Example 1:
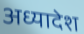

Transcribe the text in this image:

अध्यादेश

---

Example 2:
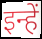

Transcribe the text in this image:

इन्हें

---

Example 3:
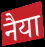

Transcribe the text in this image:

नैया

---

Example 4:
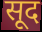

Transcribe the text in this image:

सूद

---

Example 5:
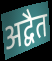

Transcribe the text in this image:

अद्वैत